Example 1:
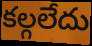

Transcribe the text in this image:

కల్గలేదు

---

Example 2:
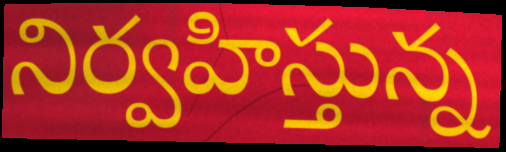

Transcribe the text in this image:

నిర్వహిస్తున్న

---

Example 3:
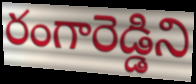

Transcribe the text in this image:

రంగారెడ్డిని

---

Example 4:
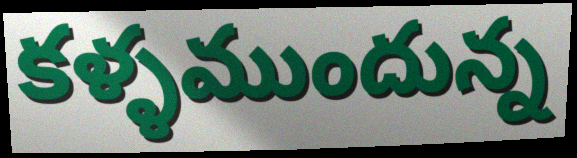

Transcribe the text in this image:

కళ్ళముందున్న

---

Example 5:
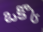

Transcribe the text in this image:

ఒక్కొ